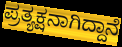
ಪ್ರತ್ಯಕ್ಷನಾಗಿದ್ದಾನೆ